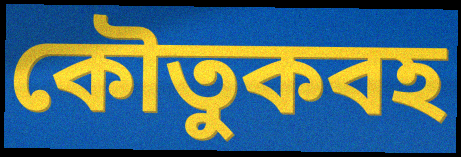
কৌতুকবহ